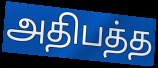
அதிபத்த